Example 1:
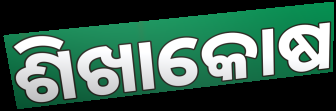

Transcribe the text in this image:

ଶିଖାକୋଷ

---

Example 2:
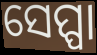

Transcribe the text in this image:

ସେପ୍ପା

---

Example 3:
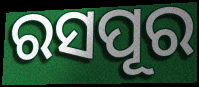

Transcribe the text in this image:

ରସପୂର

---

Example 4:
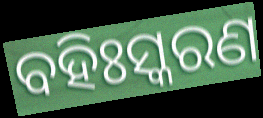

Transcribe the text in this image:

ବହିଃସ୍କରଣ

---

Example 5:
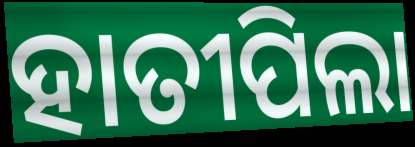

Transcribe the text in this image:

ହାତୀପିଲା